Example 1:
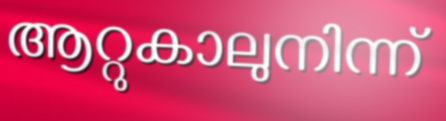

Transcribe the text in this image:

ആറ്റുകാലുനിന്ന്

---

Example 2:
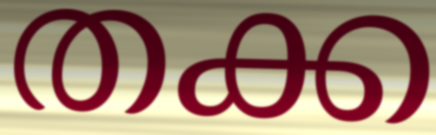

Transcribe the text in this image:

തക്ക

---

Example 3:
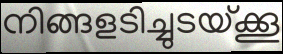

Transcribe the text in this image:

നിങ്ങളടിച്ചുടയ്ക്കൂ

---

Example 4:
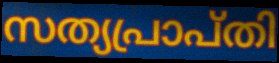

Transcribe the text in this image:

സത്യപ്രാപ്തി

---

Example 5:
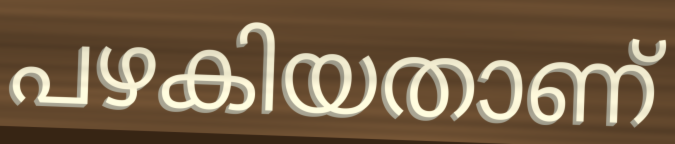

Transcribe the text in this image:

പഴകിയതാണ്